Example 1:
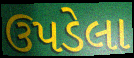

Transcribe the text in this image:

ઉપડેલા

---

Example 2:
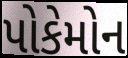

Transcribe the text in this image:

પોકેમોન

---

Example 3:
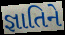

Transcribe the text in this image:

જ્ઞાતિને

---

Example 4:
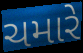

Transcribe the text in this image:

ચમારે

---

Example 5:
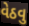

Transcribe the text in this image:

વેઠવુ